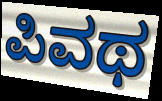
ಪಿವಥ